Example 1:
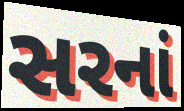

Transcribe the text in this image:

સરનાં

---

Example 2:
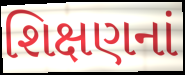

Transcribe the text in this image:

શિક્ષણનાં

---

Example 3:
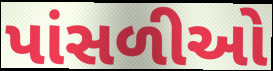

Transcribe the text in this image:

પાંસળીઓ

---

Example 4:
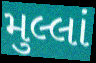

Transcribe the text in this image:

મુલ્લાં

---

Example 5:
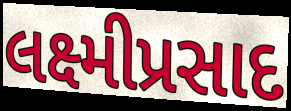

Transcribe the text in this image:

લક્ષ્મીપ્રસાદ